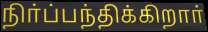
நிர்ப்பந்திக்கிறார்